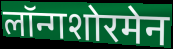
लॉन्गशोरमेन